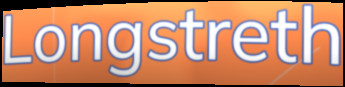
Longstreth